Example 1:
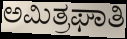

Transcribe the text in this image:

ಅಮಿತ್ರಘಾತಿ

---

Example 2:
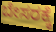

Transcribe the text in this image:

ಬೇಸರಕ್ಕೆ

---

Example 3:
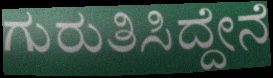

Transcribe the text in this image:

ಗುರುತಿಸಿದ್ದೇನೆ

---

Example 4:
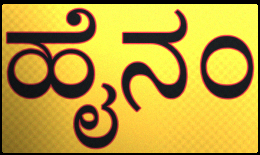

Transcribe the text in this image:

ಹೈನಂ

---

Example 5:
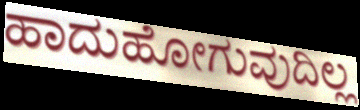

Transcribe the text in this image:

ಹಾದುಹೋಗುವುದಿಲ್ಲ